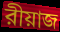
রীয়াজ